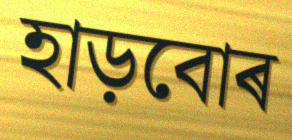
হাড়বোৰ